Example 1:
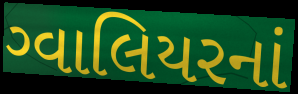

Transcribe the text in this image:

ગ્વાલિયરનાં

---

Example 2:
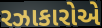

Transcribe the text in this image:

રઝાકારોએ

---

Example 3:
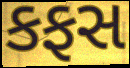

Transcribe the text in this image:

કફસ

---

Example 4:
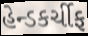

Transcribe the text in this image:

હેન્ડકર્ચીફ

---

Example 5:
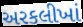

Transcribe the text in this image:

અરકલીખાં